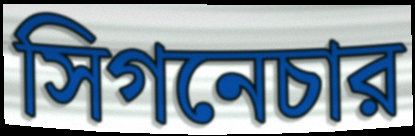
সিগনেচার